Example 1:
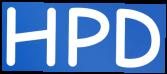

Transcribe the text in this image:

HPD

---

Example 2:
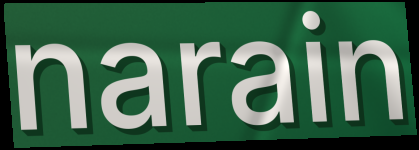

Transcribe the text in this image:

narain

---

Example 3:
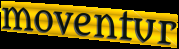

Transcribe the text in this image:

moventur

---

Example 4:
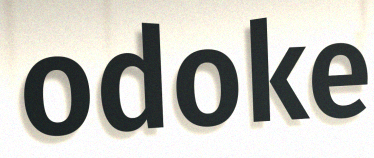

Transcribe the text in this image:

odoke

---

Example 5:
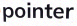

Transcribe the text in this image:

pointer